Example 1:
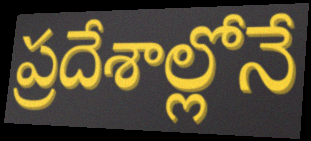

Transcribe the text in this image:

ప్రదేశాల్లోనే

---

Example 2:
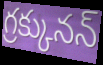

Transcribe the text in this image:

గ్రక్కునన్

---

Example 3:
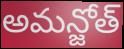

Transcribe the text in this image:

అమన్జోత్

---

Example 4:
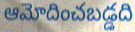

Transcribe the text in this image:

ఆమోదించబడ్డది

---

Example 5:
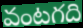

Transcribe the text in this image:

వంటగది